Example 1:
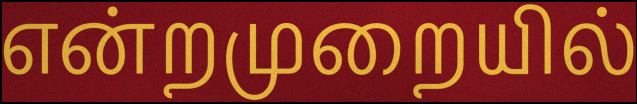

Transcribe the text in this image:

என்றமுறையில்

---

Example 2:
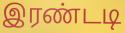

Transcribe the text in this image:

இரண்டடி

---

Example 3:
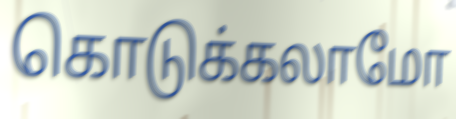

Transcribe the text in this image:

கொடுக்கலாமோ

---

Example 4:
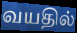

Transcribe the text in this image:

வயதில்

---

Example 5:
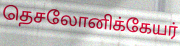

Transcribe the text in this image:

தெசலோனிக்கேயர்